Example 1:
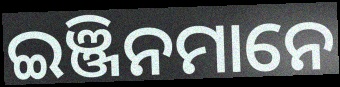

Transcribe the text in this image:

ଇଞ୍ଜିନମାନେ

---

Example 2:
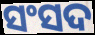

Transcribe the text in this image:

ସଂସଦ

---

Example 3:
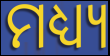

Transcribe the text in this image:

ମଧ୍ୟ୍ୟ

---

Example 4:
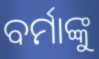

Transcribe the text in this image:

ବର୍ମାଙ୍କୁ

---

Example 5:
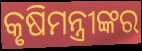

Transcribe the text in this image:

କୃଷିମନ୍ତ୍ରୀଙ୍କର